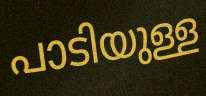
പാടിയുള്ള